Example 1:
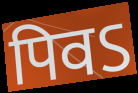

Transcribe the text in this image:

पिवऽ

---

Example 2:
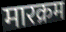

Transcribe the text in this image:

मारक्रम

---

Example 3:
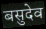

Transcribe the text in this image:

बसुदेव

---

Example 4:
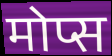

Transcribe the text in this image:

मोप्स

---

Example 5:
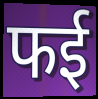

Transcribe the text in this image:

फई